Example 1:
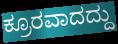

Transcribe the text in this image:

ಕ್ರೂರವಾದದ್ದು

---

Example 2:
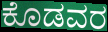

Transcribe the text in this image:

ಕೊಡವರ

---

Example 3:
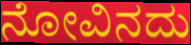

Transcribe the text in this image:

ನೋವಿನದು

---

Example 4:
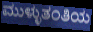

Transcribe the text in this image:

ಮುಳ್ಳುತಂತಿಯ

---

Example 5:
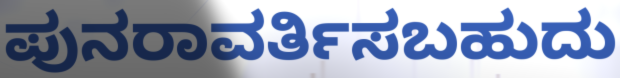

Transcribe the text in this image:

ಪುನರಾವರ್ತಿಸಬಹುದು